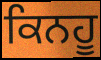
ਕਿਨਹੂ